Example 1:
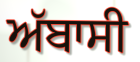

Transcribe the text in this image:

ਅੱਬਾਸੀ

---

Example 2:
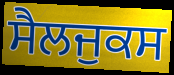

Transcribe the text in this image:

ਸੈਲਜੁਕਸ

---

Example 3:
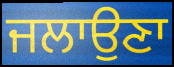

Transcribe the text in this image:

ਜਲਾਉਣਾ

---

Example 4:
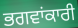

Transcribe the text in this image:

ਭਗਵਾਂਕਾਰੀ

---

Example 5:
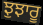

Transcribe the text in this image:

ਝੁਝਾਰੂ